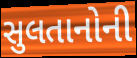
સુલતાનોની